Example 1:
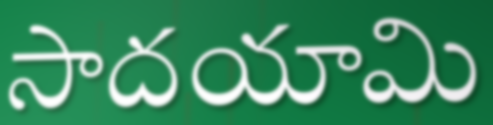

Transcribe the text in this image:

సాదయామి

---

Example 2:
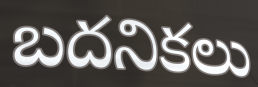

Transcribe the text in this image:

బదనికలు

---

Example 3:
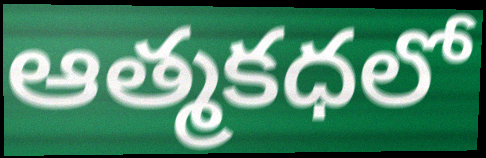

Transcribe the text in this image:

ఆత్మకధలో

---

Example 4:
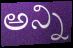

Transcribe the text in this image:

అన్ని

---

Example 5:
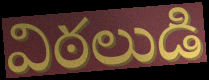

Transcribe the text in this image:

విఠలుడి